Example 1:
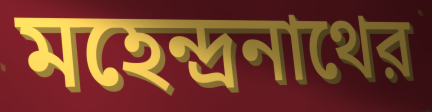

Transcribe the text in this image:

মহেন্দ্রনাথের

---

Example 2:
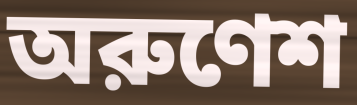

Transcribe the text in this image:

অরুণেশ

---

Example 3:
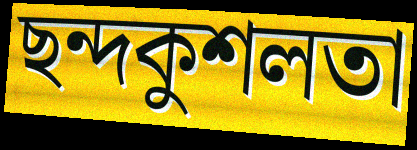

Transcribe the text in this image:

ছন্দকুশলতা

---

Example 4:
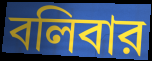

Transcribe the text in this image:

বলিবার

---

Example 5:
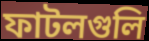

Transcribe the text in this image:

ফাটলগুলি